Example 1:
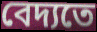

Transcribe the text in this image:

বেদ্যতে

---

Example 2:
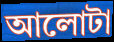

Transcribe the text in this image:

আলোটা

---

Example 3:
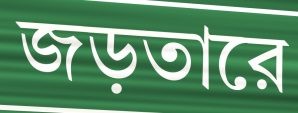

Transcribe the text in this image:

জড়তারে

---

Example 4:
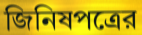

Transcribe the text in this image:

জিনিষপত্রের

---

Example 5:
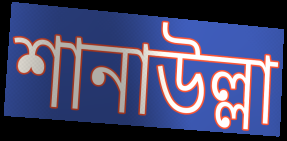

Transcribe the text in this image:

শানাউল্লা